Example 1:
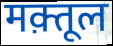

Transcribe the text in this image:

मक़्तूल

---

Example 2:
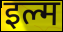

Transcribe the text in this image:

इल्म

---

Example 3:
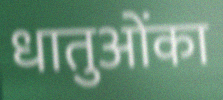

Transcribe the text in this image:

धातुओंका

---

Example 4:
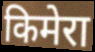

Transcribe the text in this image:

किमेरा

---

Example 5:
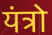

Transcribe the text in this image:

यंत्रो